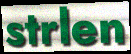
strlen